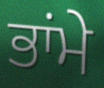
ਭਾਂਮੇ